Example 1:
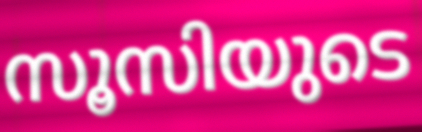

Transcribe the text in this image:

സൂസിയുടെ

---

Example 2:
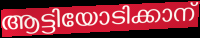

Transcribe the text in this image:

ആട്ടിയോടിക്കാന്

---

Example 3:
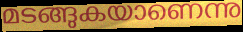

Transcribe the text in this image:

മടങ്ങുകയാണെന്നു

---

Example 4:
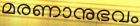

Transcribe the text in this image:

മരണാനുഭവം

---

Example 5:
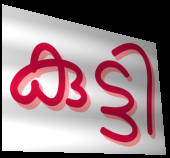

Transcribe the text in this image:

കുട്ടി